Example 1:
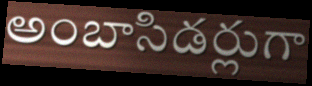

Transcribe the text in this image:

అంబాసిడర్లుగా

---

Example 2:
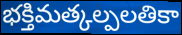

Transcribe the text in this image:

భక్తిమత్కల్పలతికా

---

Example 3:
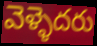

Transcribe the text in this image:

వెళ్ళెదరు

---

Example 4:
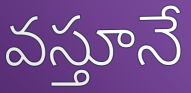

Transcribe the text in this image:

వస్తూనే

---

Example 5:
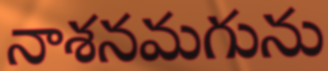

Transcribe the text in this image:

నాశనమగును